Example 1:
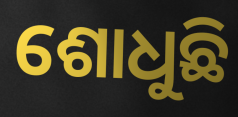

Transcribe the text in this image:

ଶୋଧୁଛି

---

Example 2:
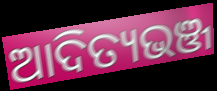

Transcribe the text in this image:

ଆଦିତ୍ୟଭଞ୍ଜ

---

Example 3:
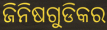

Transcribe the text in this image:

ଜିନିଷଗୁଡିକର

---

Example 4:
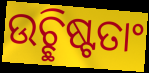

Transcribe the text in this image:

ଉଚ୍ଛିଷ୍ଟତାଂ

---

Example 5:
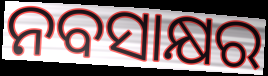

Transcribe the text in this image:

ନବସାକ୍ଷର